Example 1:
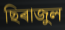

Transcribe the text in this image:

ছিৰাজুল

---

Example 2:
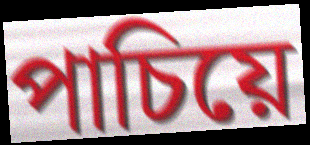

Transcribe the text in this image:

পাচিয়ে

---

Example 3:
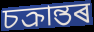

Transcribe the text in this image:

চক্ৰান্তৰ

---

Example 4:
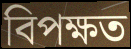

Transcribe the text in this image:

বিপক্ষত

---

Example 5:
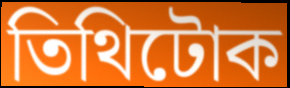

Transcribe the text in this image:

তিথিটোক